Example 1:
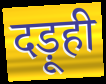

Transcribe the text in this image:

दड़ूही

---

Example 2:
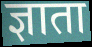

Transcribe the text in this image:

ज्ञाता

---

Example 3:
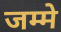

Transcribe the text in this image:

जम्मे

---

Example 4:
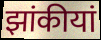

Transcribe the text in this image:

झांकीयां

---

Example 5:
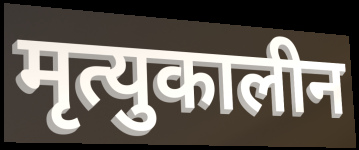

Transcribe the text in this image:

मृत्युकालीन